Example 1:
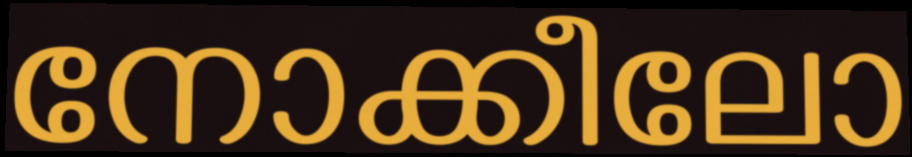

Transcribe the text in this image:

നോക്കീലോ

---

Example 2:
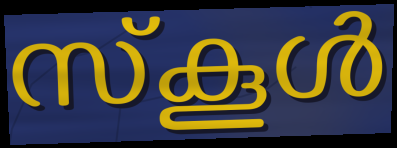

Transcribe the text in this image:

സ്‌കൂൾ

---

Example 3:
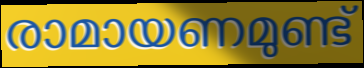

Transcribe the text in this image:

രാമായണമുണ്ട്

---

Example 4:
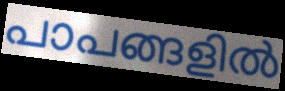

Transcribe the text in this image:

പാപങ്ങളിൽ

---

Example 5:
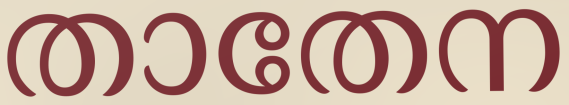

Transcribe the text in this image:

താതേന